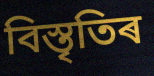
বিস্তৃতিৰ